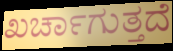
ಖರ್ಚಾಗುತ್ತದೆ